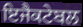
ਇਜੈਕਟੇਬਲ